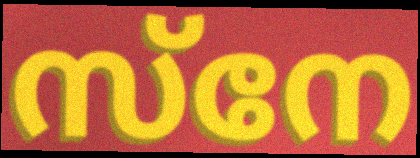
സ്നേ